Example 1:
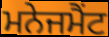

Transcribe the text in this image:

ਮਨੇਜਮੈਂਟ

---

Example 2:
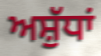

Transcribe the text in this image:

ਅਸ਼ੁੱਧਾਂ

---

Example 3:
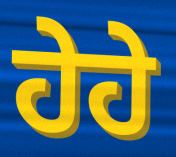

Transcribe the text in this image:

ਹੇਹੇ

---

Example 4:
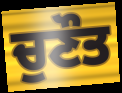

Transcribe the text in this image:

ਚੁਣੌਤ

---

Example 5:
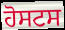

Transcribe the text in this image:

ਹੋਸਟਸ